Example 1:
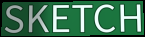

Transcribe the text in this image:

SKETCH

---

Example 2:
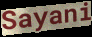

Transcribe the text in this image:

Sayani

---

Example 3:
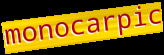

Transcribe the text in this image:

monocarpic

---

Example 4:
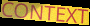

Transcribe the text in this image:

CONTEXT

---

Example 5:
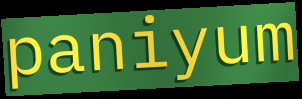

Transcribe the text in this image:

paniyum